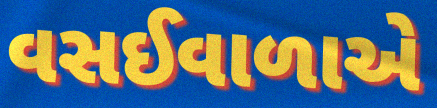
વસઈવાળાએ